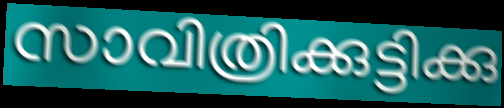
സാവിത്രിക്കുട്ടിക്കു